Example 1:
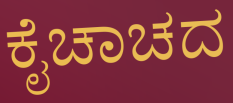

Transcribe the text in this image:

ಕೈಚಾಚದ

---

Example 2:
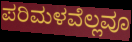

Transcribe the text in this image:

ಪರಿಮಳವೆಲ್ಲವೂ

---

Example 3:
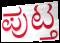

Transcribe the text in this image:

ಪುಟ್ತ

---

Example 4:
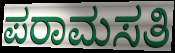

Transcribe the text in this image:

ಪರಾಮಸತಿ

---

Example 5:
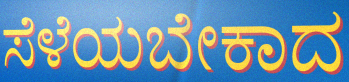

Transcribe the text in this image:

ಸೆಳೆಯಬೇಕಾದ